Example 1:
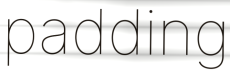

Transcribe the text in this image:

padding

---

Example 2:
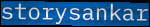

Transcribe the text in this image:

storysankar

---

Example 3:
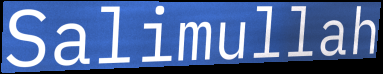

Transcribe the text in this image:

Salimullah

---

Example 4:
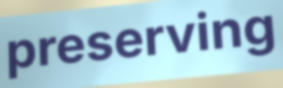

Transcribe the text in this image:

preserving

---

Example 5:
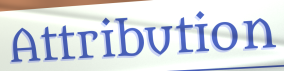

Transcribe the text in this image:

Attribution